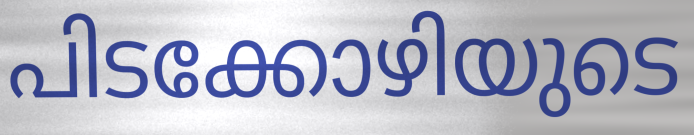
പിടക്കോഴിയുടെ